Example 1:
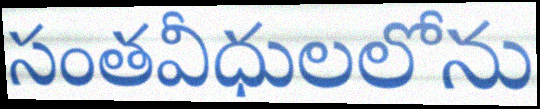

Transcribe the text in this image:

సంతవీధులలోను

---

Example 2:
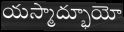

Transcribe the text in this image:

యస్మాద్భూయో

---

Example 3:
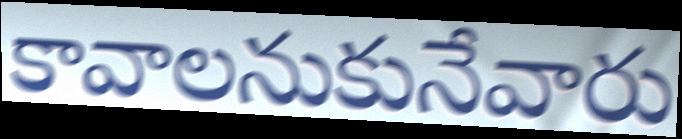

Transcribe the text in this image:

కావాలనుకునేవారు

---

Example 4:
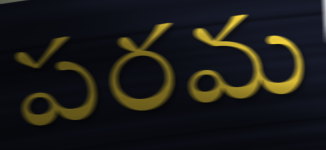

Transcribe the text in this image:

పరమ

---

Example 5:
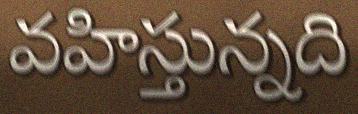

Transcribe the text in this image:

వహిస్తున్నది